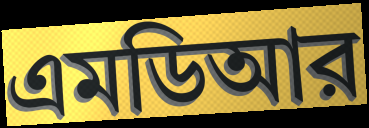
এমডিআর